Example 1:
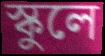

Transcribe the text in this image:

স্কুলে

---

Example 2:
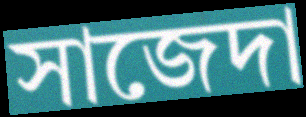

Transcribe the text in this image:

সাজেদা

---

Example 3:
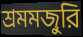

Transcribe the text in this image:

শ্রমমজুরি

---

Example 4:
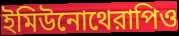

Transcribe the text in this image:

ইমিউনোথেরাপিও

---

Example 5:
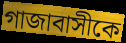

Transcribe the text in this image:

গাজাবাসীকে